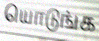
யொடுங்க